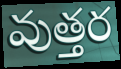
వుత్తర